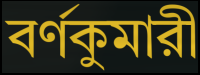
বর্ণকুমারী